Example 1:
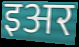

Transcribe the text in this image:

इअर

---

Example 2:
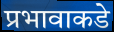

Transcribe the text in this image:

प्रभावाकडे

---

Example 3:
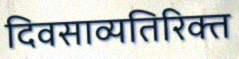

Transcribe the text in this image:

दिवसाव्यतिरिक्त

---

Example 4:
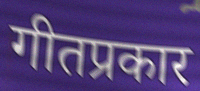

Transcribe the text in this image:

गीतप्रकार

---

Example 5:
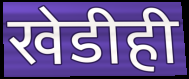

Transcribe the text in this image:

खेडीही